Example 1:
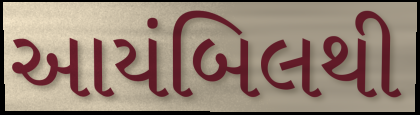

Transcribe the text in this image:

આયંબિલથી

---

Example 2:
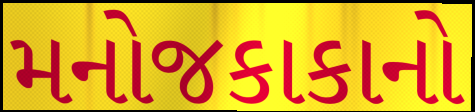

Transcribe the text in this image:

મનોજકાકાનો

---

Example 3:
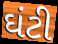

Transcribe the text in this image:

ઘંટી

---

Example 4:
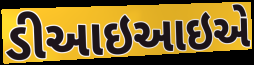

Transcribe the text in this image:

ડીઆઇઆઇએ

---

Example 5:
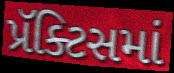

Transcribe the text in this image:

પ્રૅક્ટિસમાં